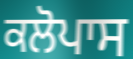
ਕਲੋਪਾਸ